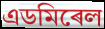
এডমিৰেল